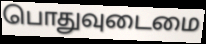
பொதுவுடைமை